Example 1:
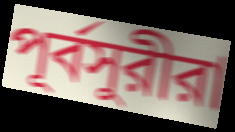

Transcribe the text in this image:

পূর্বসুরীরা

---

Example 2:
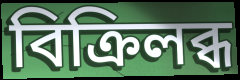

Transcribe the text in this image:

বিক্রিলব্ধ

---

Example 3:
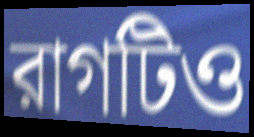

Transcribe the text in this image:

রাগটিও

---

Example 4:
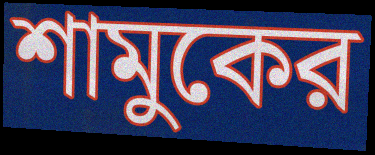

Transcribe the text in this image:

শামুকের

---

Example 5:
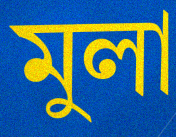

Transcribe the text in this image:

মুলা